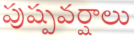
పుష్పవర్షాలు